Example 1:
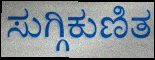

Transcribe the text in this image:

ಸುಗ್ಗಿಕುಣಿತ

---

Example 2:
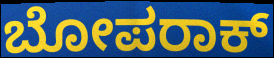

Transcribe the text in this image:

ಬೋಪರಾಕ್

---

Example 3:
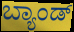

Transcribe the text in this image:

ಬ್ಯಾಂಡ್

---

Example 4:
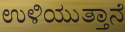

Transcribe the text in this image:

ಉಳಿಯುತ್ತಾನೆ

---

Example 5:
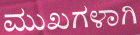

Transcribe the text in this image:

ಮುಖಗಳಾಗಿ